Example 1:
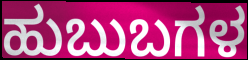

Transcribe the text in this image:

ಹುಬುಬಗಳ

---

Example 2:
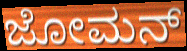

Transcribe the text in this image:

ಜೋಮನ್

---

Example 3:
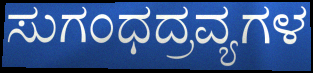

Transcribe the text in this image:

ಸುಗಂಧದ್ರವ್ಯಗಳ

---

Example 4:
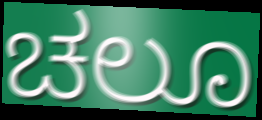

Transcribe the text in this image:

ಚಲೂ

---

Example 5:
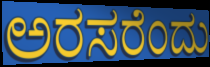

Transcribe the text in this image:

ಅರಸರೆಂದು